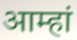
आम्हां